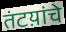
तंटय़ांचे